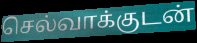
செல்வாக்குடன்